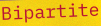
Bipartite